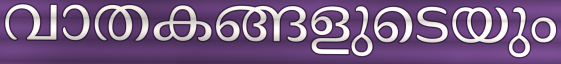
വാതകങ്ങളുടെയും